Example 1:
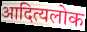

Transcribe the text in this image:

आदित्यलोक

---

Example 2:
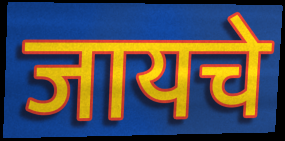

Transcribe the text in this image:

जायचे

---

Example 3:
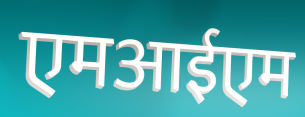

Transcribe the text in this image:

एमआईएम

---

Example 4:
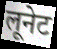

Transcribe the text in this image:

लूनेट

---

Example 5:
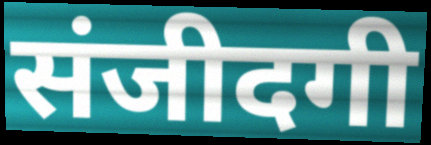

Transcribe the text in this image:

संजीदगी